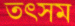
তৎসম